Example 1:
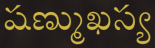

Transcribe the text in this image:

షణ్ముఖస్య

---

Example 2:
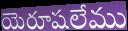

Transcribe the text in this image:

యెరూషలేము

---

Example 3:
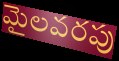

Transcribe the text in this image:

మైలవరపు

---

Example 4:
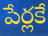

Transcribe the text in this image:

పేర్లకే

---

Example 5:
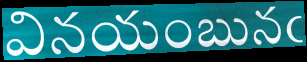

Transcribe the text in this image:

వినయంబునఁ